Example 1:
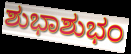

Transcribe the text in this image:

ಶುಭಾಶುಭಂ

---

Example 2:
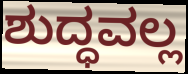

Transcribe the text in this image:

ಶುದ್ಧವಲ್ಲ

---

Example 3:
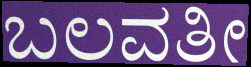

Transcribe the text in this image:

ಬಲವತೀ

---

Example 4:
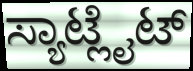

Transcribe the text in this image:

ಸ್ಯಾಟ್ಲೈಟ್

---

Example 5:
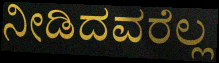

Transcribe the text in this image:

ನೀಡಿದವರೆಲ್ಲ